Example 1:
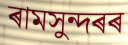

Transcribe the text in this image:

ৰামসুন্দৰৰ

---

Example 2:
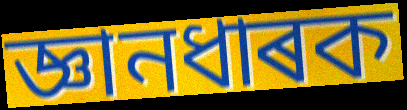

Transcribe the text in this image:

জ্ঞানধাৰক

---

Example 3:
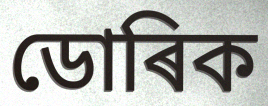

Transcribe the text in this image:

ডোৰিক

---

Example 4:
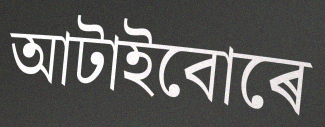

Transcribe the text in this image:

আটাইবোৰে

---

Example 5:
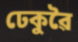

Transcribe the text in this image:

ঢেকুৱৈ